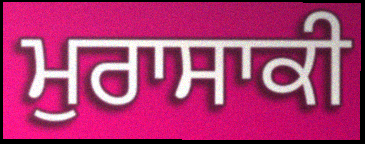
ਮੁਰਾਸਾਕੀ